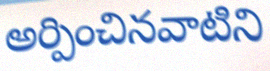
అర్పించినవాటిని